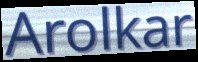
Arolkar